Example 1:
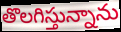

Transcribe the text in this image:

తొలగిస్తున్నాను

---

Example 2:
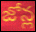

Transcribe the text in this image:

జోన్ల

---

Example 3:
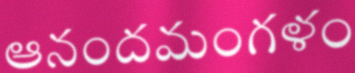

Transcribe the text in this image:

ఆనందమంగళం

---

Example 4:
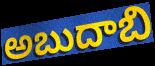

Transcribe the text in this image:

అబుదాబి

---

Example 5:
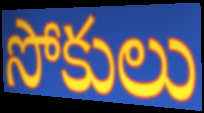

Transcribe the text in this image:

సోకులు